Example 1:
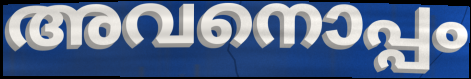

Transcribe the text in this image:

അവനൊപ്പം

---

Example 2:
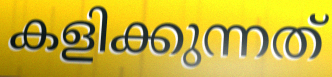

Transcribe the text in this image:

കളിക്കുന്നത്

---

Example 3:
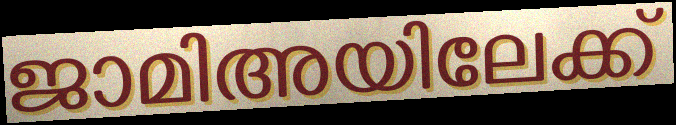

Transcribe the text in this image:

ജാമിഅയിലേക്ക്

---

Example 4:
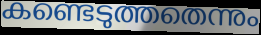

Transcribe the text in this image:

കണ്ടെടുത്തതെന്നും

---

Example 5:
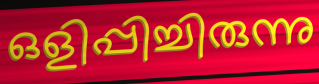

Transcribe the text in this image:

ഒളിപ്പിച്ചിരുന്നു